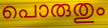
പൊരുതും